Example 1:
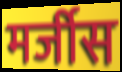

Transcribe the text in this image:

मर्जीस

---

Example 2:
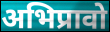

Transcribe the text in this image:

अभिप्रावो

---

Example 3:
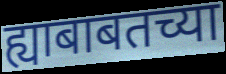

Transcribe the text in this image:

ह्याबाबतच्या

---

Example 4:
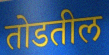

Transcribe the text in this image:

तोडतील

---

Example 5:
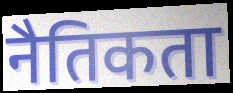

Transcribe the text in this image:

नैतिकता